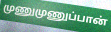
முணுமுணுப்பான்